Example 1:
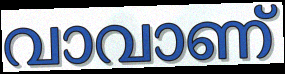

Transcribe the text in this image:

വാവാണ്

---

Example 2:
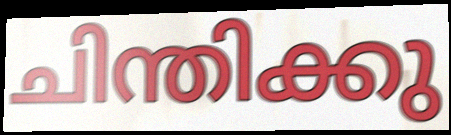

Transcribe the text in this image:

ചിന്തിക്കു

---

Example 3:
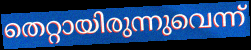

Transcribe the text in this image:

തെറ്റായിരുന്നുവെന്ന്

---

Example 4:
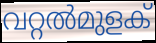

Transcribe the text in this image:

വറ്റൽമുളക്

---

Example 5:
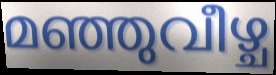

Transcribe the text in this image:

മഞ്ഞുവീഴ്ച